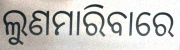
ଲୁଣମାରିବାରେ